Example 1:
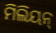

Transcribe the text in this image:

ମିଲିୟନ୍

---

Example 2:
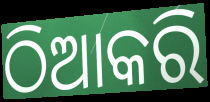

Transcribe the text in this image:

ଠିଆକରି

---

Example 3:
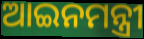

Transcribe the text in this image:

ଆଇନମନ୍ତ୍ରୀ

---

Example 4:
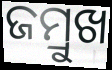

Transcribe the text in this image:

ଜମ୍ରୁଖ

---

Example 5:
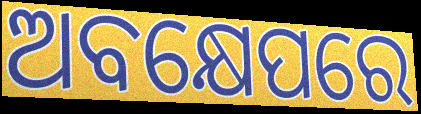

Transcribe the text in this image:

ଅବକ୍ଷେପରେ